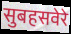
सुबहसवेरे